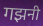
गझनी